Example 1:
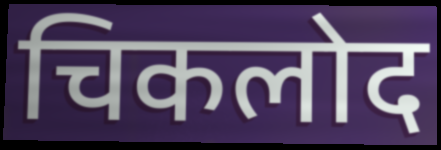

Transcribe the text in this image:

चिकलोद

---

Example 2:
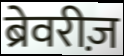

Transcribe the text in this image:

ब्रेवरीज़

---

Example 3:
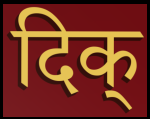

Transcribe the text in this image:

दिक्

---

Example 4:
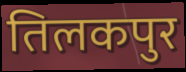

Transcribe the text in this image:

तिलकपुर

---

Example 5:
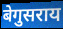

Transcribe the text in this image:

बेगुसराय